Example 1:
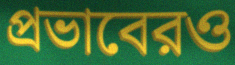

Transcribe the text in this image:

প্রভাবেরও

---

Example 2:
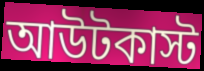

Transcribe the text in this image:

আউটকাস্ট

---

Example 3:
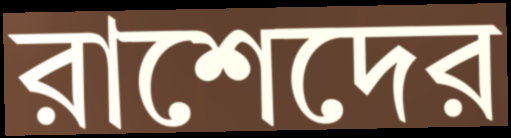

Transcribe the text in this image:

রাশেদের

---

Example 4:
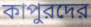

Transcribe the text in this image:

কাপুরদের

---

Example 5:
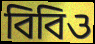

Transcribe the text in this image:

বিবিও